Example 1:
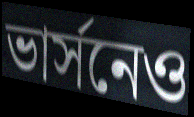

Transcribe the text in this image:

ভার্সনেও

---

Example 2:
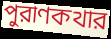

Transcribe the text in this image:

পুরাণকথার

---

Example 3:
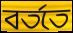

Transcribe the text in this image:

বর্ততে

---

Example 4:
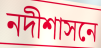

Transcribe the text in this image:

নদীশাসনে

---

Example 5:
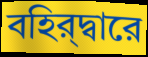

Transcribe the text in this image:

বহির্‌দ্বারে